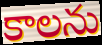
కాలను